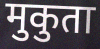
मुकुता